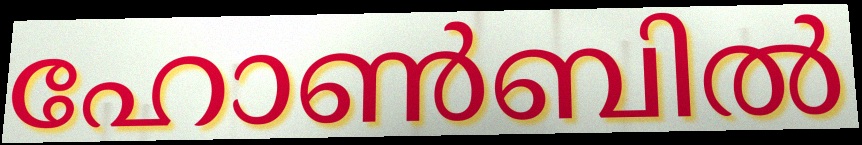
ഹോൺബിൽ